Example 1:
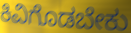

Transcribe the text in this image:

ಕಿವಿಗೊಡಬೇಕು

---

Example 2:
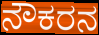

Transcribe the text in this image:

ನೌಕರನ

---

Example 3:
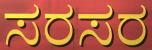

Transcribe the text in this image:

ಸರಸರ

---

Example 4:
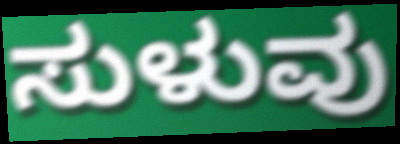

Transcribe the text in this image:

ಸುಳುವು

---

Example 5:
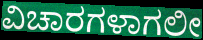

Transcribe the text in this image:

ವಿಚಾರಗಳಾಗಲೀ